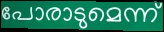
പോരാടുമെന്ന്